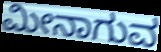
ಮೀನಾಗುವ